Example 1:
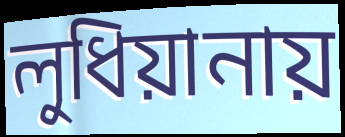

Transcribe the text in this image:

লুধিয়ানায়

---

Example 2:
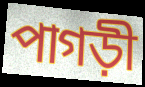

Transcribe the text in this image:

পাগড়ী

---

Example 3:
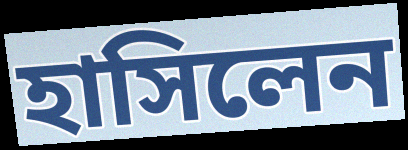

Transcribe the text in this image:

হাসিলেন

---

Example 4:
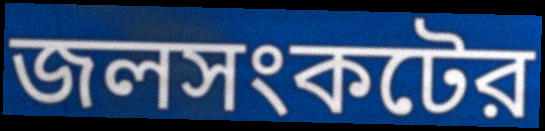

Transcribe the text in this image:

জলসংকটের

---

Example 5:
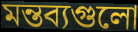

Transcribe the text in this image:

মন্তব্যগুলো